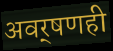
अवर्षणही